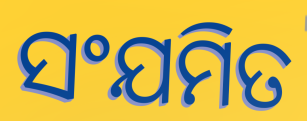
ସଂଯମିତ